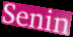
Senin